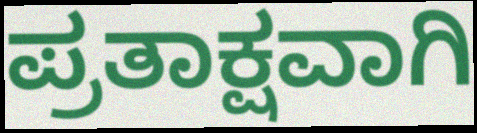
ಪ್ರತಾಕ್ಷವಾಗಿ